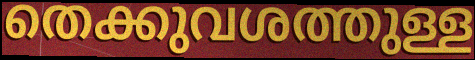
തെക്കുവശത്തുള്ള